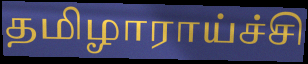
தமிழாராய்ச்சி